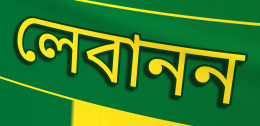
লেবানন